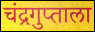
चंद्रगुप्ताला